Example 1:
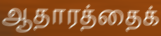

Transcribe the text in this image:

ஆதாரத்தைக்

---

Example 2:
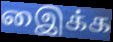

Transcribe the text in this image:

இைக்க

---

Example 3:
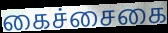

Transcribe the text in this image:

கைச்சைகை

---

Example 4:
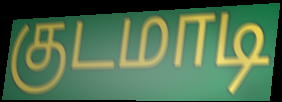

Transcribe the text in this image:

குடமாடி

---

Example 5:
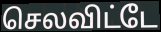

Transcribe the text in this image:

செலவிட்டே